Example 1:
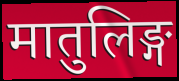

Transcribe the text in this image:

मातुलिङ्ग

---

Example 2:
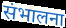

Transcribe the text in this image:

संभालना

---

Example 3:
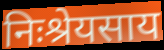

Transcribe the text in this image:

निःश्रेयसाय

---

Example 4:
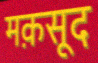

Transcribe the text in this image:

मक़सूद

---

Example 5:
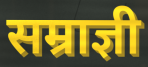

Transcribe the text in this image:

सम्राज्ञी